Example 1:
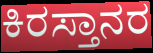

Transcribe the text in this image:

ಕಿರಸ್ತಾನರ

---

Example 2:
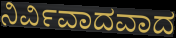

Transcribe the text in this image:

ನಿರ್ವಿವಾದವಾದ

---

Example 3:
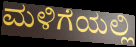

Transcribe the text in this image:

ಮಳಿಗೆಯಲ್ಲಿ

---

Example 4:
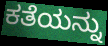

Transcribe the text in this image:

ಕತೆಯನ್ನು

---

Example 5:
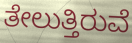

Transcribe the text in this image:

ತೇಲುತ್ತಿರುವೆ